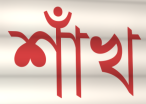
শাঁখ